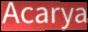
Acarya